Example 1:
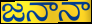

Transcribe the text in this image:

జనానా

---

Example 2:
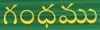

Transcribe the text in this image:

గంధము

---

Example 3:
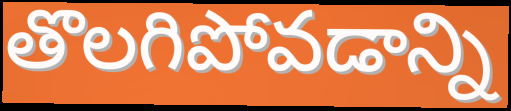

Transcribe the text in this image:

తొలగిపోవడాన్ని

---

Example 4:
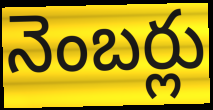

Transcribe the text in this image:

నెంబర్లు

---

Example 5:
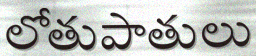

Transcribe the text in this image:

లోతుపాతులు